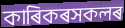
কাৰিকৰসকলৰ